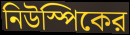
নিউস্পিকের